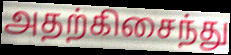
அதற்கிசைந்து